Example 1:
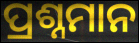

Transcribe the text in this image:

ପ୍ରଶ୍ନମାନ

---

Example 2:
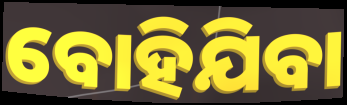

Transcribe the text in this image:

ବୋହିଯିବା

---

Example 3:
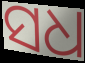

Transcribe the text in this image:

ସଧ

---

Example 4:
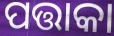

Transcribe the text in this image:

ପତ୍ତାକା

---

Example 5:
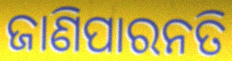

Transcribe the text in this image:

ଜାଣିପାରନତି